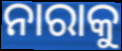
ନାରାକୁ